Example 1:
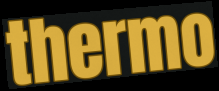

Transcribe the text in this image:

thermo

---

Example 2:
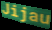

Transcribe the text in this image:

Jijau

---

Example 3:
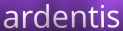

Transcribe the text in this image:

ardentis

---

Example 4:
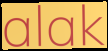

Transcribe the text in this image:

alak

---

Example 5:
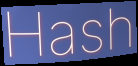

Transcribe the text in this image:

Hash